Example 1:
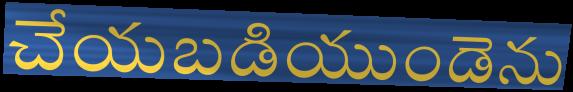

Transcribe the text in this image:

చేయబడియుండెను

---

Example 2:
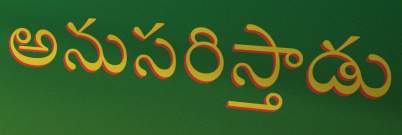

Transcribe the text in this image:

అనుసరిస్తాడు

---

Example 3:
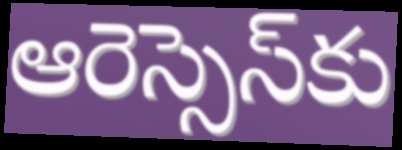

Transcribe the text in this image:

ఆరెస్సెస్‌కు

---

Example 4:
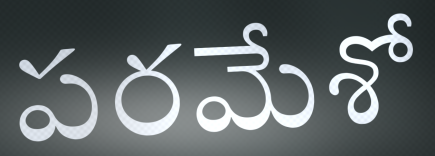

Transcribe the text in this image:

పరమేశో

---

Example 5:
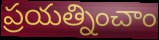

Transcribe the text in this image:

ప్రయత్నించాం